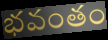
భవంతం